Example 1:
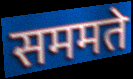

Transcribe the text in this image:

सममते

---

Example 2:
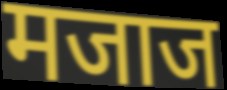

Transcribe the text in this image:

मजाज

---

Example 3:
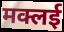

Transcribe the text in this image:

मक्लई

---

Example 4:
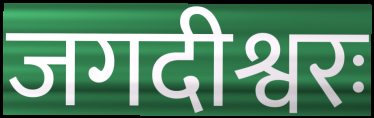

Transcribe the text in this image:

जगदीश्वरः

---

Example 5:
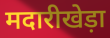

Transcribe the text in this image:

मदारीखेड़ा